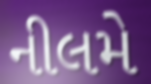
નીલમે